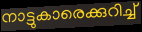
നാട്ടുകാരെക്കുറിച്ച്